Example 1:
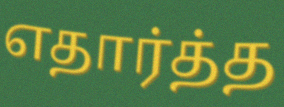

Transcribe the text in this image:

எதார்த்த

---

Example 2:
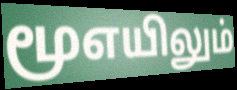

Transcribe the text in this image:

மூஎயிலும்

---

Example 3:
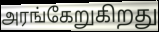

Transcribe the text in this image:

அரங்கேறுகிறது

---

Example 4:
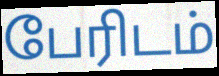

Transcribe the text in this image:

பேரிடம்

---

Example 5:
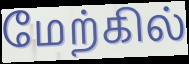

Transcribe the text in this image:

மேற்கில்